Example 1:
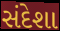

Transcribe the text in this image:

સંદેશા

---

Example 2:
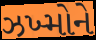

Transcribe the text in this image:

ઝખ્મોને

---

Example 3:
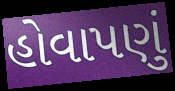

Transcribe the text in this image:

હોવાપણું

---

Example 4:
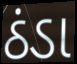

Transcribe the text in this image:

ઠંડા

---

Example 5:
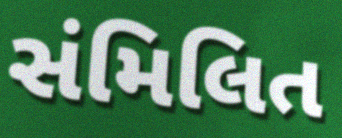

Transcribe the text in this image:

સંમિલિત